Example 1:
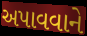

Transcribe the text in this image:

અપાવવાને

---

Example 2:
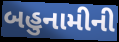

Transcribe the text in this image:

બહુનામીની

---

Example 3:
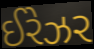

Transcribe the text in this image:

ઈરેઝર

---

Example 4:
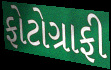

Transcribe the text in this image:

ફોટોગ્રાફી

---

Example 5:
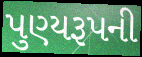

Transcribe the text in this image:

પુણ્યરૂપની